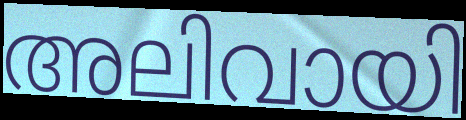
അലിവായി